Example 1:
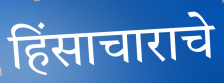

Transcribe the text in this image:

हिंसाचाराचे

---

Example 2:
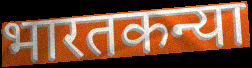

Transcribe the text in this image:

भारतकन्या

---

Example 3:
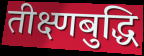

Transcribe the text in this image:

तीक्ष्णबुद्धि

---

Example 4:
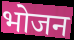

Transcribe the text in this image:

भोजन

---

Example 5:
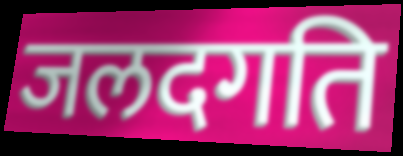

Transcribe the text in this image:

जलदगति